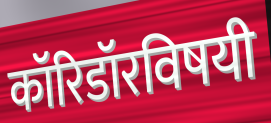
कॉरिडॉरविषयी